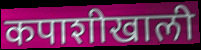
कपाशीखाली